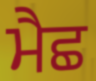
ਮੈਛ